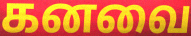
கனவை